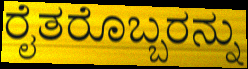
ರೈತರೊಬ್ಬರನ್ನು